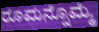
ರೂಮನ್ನೊಮ್ಮೆ